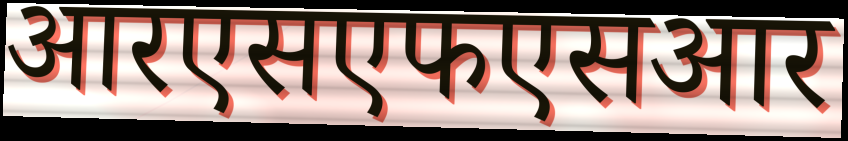
आरएसएफएसआर